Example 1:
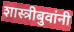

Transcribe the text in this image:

शास्त्रीबुवांनी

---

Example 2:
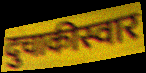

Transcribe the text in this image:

दुचाकीस्वार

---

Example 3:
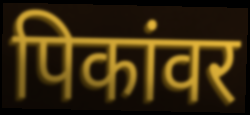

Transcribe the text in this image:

पिकांवर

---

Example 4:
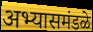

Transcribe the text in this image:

अभ्यासमंडळे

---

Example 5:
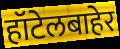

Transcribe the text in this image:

हॉटेलबाहेर